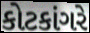
કોટકાંગરે